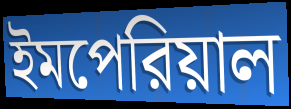
ইমপেরিয়াল